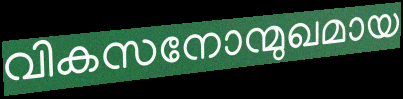
വികസനോന്മുഖമായ